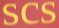
scs